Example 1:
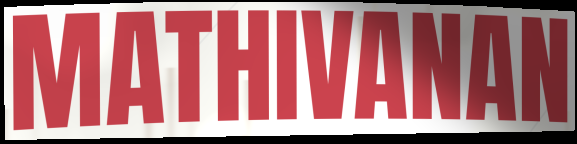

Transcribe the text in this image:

MATHIVANAN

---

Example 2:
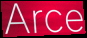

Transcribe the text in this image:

Arce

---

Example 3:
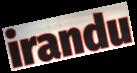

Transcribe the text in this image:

irandu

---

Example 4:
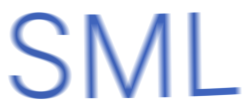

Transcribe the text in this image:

SML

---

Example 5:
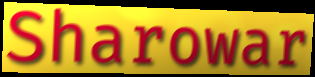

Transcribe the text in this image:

Sharowar